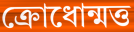
ক্রোধোন্মত্ত